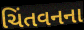
ચિંતવનના